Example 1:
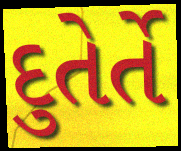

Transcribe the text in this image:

દુતેર્તે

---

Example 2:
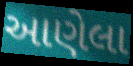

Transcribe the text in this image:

આણેલા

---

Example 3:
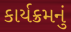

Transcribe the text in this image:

કાર્યક્રમનું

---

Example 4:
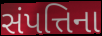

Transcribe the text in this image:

સંપત્તિના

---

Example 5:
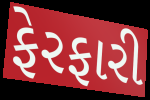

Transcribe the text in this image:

ફેરફારી